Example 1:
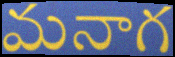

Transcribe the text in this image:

మనాగ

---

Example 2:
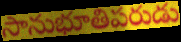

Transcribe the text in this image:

సానుభూతిపరుడు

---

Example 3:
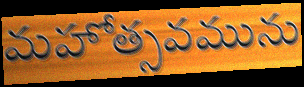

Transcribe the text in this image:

మహోత్సవమును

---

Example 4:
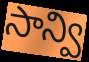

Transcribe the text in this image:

సాన్వి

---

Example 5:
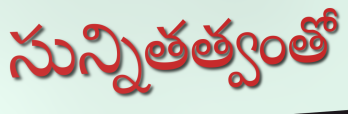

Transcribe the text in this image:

సున్నితత్వంతో